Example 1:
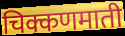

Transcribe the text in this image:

चिक्कणमाती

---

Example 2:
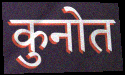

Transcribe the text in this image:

कुनोत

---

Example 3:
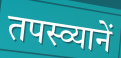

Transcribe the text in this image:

तपस्व्यानें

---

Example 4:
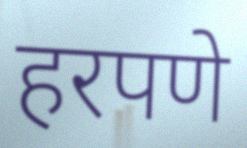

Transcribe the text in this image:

हरपणे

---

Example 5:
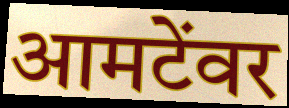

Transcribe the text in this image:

आमटेंवर